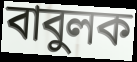
বাবুলক